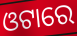
ଓଟାରେ